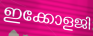
ഇക്കോളജി